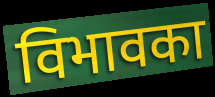
विभावका